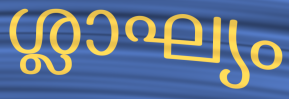
ശ്ലാഘ്യം